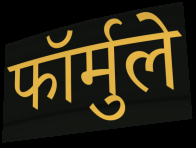
फॉर्मुले